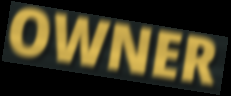
OWNER